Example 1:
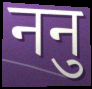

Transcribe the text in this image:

ननु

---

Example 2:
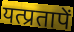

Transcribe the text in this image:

यत्प्रतापें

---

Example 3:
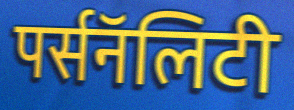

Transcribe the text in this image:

पर्सनॅलिटी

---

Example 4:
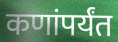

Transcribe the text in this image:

कणांपर्यंत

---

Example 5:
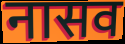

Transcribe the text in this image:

नासव